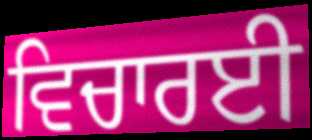
ਵਿਚਾਰਈ